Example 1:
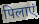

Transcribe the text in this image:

पिलाएं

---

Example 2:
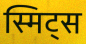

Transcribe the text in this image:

स्मिट्स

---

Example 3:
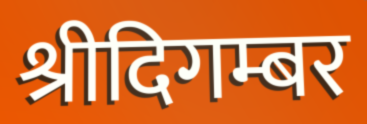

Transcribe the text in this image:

श्रीदिगम्बर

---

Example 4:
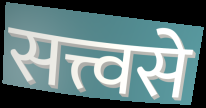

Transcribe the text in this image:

सत्त्वसे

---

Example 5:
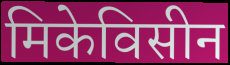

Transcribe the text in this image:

मिकेविसीन